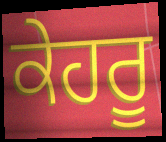
ਕੇਹਰੂ